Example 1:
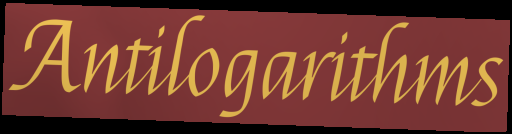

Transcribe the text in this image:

Antilogarithms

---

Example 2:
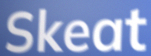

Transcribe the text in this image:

Skeat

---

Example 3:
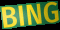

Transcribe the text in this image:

BING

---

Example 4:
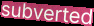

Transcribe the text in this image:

subverted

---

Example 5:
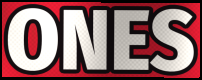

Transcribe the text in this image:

ONES